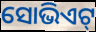
ସୋଭିଏଟ୍